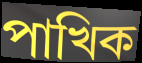
পাখিক